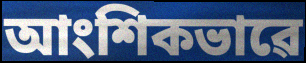
আংশিকভাৱে